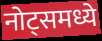
नोट्समध्ये